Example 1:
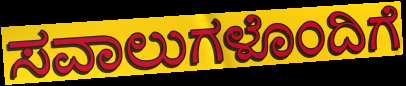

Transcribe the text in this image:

ಸವಾಲುಗಳೊಂದಿಗೆ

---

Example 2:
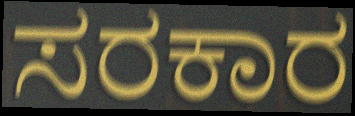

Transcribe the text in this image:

ಸರಕಾರ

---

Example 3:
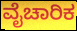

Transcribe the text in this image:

ವೈಚಾರಿಕ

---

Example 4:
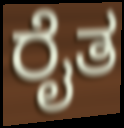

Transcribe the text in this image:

ರೈತ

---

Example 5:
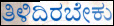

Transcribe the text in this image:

ತಿಳಿದಿರಬೇಕು